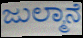
ಜುಲ್ಮಾನೆ